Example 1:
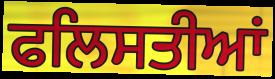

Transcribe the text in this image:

ਫਲਿਸਤੀਆਂ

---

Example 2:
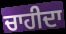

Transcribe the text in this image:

ਚਾਹੀਦਾ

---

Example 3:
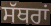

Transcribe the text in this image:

ਸੱਥਰਾਂ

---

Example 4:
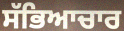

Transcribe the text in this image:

ਸੱਭਿਆਚਾਰ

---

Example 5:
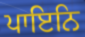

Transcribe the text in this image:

ਪਾਇਨਿ